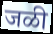
जळी